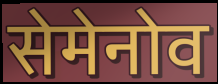
सेमेनोव